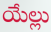
యేల్లు